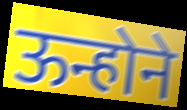
ऊन्होने